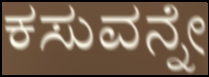
ಕಸುವನ್ನೇ